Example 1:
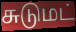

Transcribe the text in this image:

சுடுமட்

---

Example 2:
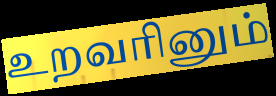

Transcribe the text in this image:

உறவரினும்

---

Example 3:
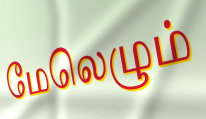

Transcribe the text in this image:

மேலெழும்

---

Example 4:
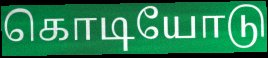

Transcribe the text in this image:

கொடியோடு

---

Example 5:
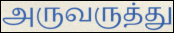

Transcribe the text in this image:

அருவருத்து